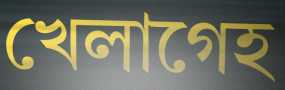
খেলাগেহ